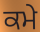
ਕਮੇ